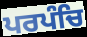
ਪਰਪੰਚਿ